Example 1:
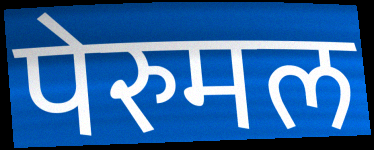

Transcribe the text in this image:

पेरुमल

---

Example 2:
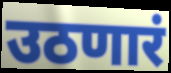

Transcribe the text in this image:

उठणारं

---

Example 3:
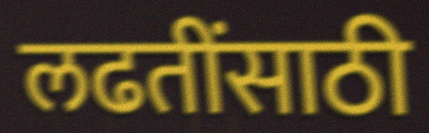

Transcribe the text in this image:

लढतींसाठी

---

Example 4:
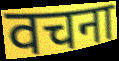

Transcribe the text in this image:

वचना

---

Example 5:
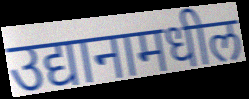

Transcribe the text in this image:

उद्यानामधील